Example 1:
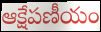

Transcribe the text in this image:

ఆక్షేపణీయం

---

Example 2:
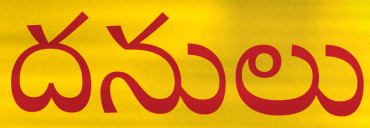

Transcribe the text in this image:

దనులు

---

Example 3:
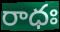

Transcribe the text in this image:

రాధః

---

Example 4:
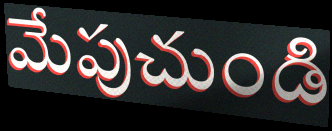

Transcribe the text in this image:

మేపుచుండి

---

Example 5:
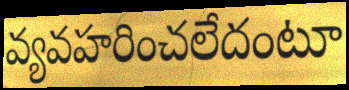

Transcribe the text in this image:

వ్యవహరించలేదంటూ